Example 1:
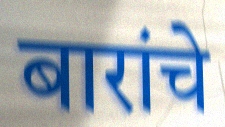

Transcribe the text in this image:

बारांचे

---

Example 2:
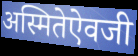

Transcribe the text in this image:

अस्मितेऐवजी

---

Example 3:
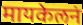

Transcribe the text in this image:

मायकेलनं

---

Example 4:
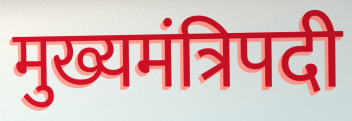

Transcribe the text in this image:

मुख्यमंत्रिपदी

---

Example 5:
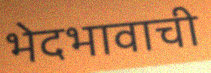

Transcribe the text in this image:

भेदभावाची